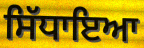
ਸਿੱਧਾਇਆ